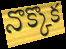
నొక్కొక